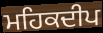
ਮਹਿਕਦੀਪ